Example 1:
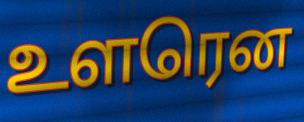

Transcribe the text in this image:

உளரென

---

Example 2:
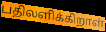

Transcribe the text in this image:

பதிலளிக்கிறாள்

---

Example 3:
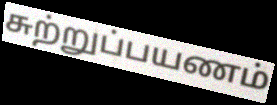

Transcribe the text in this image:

சுற்றுப்பயணம்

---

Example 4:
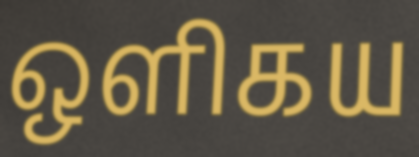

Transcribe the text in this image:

ஒளிகய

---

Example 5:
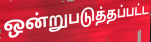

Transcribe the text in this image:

ஒன்றுபடுத்தப்பட்ட